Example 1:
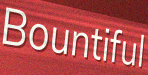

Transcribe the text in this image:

Bountiful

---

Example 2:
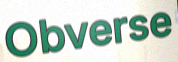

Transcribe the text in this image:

Obverse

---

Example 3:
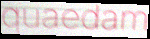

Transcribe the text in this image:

quaedam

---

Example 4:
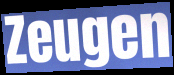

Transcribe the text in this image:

Zeugen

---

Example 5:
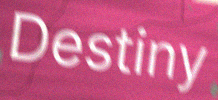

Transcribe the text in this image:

Destiny